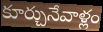
కూర్చునేవాళ్లం